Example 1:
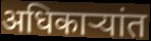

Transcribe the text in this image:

अधिकाऱ्यांत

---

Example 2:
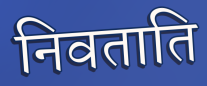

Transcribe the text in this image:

निवताति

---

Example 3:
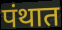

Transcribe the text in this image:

पंथात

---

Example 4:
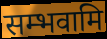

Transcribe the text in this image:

सम्भवामि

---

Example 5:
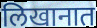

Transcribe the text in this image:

लिखानात